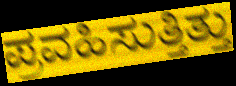
ಪ್ರವಹಿಸುತ್ತಿತ್ತು